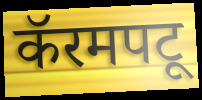
कॅरमपटू